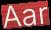
Aar